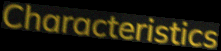
Characteristics